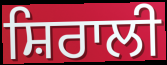
ਸ਼ਿਰਾਲੀ